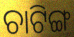
ଚାଟିଙ୍ଗ